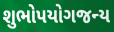
શુભોપયોગજન્ય